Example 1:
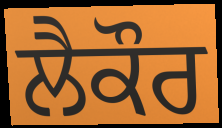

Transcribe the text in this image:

ਲੈਕੌਰ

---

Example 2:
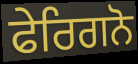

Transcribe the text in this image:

ਫੇਰਿਗਨੋ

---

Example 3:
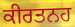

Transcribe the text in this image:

ਕੀਰਤਨਹ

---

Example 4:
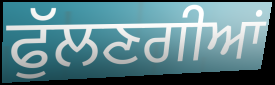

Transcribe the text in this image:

ਫੁੱਲਣਗੀਆਂ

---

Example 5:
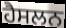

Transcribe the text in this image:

ਹੈਸਲਨ